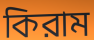
কিরাম